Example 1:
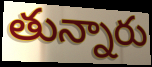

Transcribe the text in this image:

తున్నారు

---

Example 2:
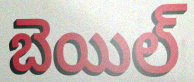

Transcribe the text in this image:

బెయిల్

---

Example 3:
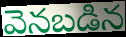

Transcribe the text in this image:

వెనబడిన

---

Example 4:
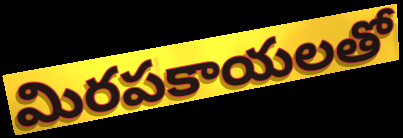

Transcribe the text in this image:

మిరపకాయలతో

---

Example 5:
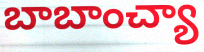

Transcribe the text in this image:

బాబాంచ్యా